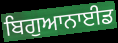
ਬਿਗੁਆਨਾਈਡ